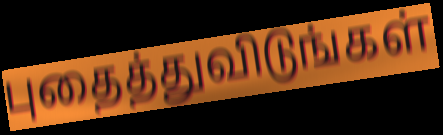
புதைத்துவிடுங்கள்